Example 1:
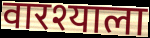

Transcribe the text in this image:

वारश्याला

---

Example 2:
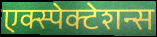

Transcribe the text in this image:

एक्स्पेक्टेशन्स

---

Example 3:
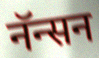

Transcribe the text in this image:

नॅन्सन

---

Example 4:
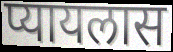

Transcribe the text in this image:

प्यायलास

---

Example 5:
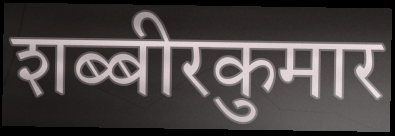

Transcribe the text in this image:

शब्बीरकुमार